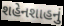
શહેનશાહનું